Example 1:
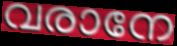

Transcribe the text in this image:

വരാനേ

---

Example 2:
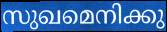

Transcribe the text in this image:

സുഖമെനിക്കു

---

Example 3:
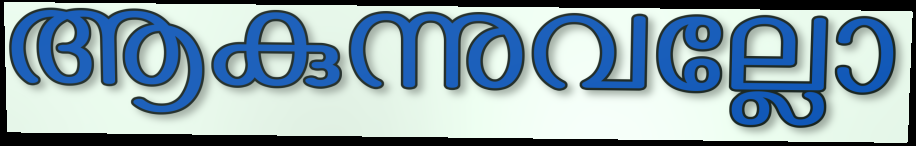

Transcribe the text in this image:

ആകുന്നുവല്ലോ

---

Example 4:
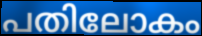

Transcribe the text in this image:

പതിലോകം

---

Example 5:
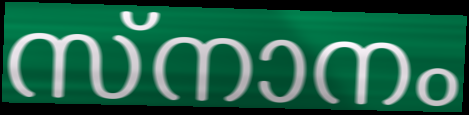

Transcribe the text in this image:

സ്‌നാനം